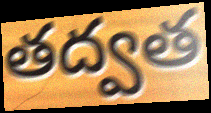
తద్వత